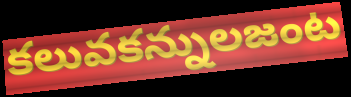
కలువకన్నులజంట